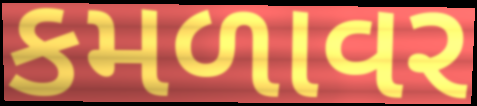
કમળાવર